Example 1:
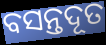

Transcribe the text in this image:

ବସନ୍ତଦୂତ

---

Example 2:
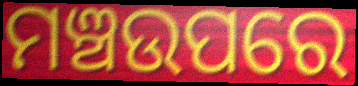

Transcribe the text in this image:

ମଞ୍ଚଉପରେ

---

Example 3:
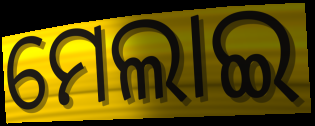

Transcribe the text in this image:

ମେଲାଇ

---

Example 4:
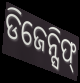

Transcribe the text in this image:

ଡିଜେନ୍ସିଫ୍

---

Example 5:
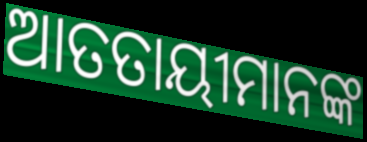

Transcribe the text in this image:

ଆତତାୟୀମାନଙ୍କ